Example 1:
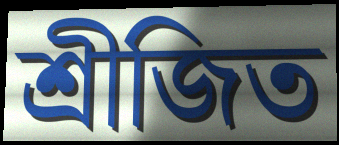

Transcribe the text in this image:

শ্রীজিত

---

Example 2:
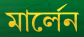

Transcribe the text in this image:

মার্লেন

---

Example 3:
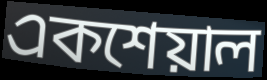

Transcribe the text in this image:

একশেয়াল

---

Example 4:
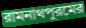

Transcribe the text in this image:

রামনাথপুরমের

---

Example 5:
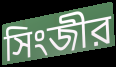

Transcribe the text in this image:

সিংজীর